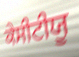
ਕੇਸੀਟੀਯੂ